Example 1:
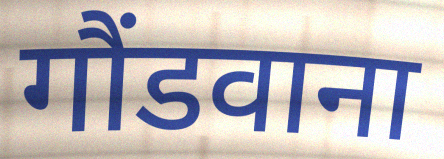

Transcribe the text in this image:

गौंडवाना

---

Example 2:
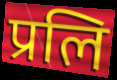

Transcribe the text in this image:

प्रलि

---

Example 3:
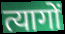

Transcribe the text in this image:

त्यागों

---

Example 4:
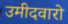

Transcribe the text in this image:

उमीदवारो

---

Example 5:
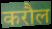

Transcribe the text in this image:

करौल